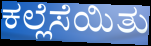
ಕಲ್ಲೆಸೆಯಿತು